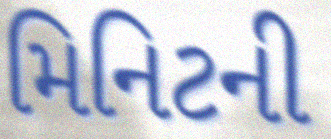
મિનિટની